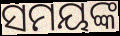
ସମୟଙ୍କ